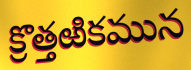
క్రొత్తఱికమున